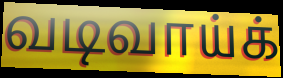
வடிவாய்க்